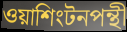
ওয়াশিংটনপন্থী